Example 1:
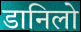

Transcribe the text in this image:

डानिलो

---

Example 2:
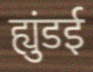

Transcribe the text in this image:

ह्युंडई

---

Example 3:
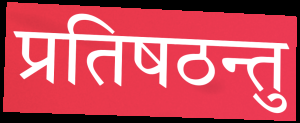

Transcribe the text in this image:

प्रतिषठन्तु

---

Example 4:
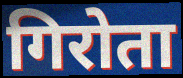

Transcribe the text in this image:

गिरोता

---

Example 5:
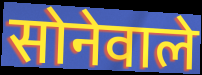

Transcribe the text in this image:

सोनेवाले